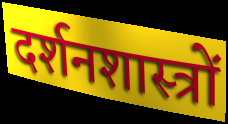
दर्शनशास्त्रों